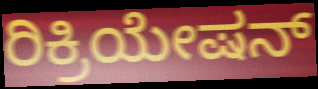
ರಿಕ್ರಿಯೇಷನ್